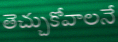
తెచ్చుకోవాలనే